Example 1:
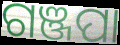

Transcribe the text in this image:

ଗଞ୍ଜପା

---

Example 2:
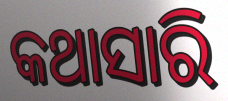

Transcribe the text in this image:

କଥାସାରି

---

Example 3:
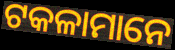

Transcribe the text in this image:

ଟକଳାମାନେ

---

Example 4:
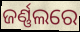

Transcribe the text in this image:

ଜର୍ଣ୍ଣଲରେ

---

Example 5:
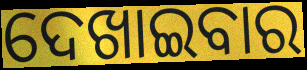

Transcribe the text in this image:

ଦେଖାଇବାର